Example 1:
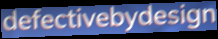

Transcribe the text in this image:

defectivebydesign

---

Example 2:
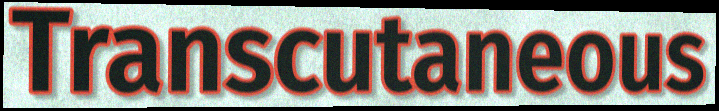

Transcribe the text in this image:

Transcutaneous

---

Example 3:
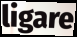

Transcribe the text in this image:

ligare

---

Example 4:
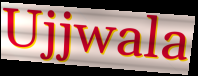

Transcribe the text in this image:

Ujjwala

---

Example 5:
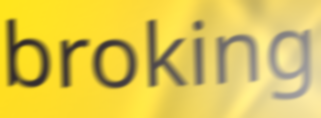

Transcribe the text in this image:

broking